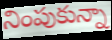
నింపుకున్నా